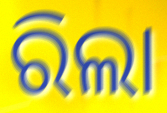
ରିଲା